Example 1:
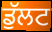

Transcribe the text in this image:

ਡੁੱਲਟ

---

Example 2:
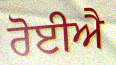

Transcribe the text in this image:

ਰੋਈਐ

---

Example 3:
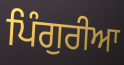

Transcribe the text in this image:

ਪਿੰਗੁਰੀਆ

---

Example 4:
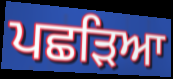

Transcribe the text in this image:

ਪਛੜਿਆ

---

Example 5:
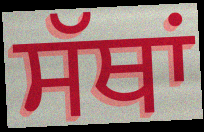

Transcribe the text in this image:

ਸੱਥਾਂ